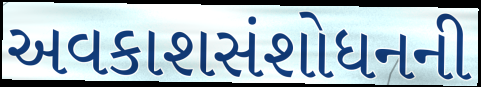
અવકાશસંશોધનની